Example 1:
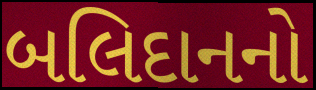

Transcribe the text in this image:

બલિદાનનો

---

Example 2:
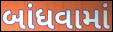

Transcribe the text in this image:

બાંધવામાં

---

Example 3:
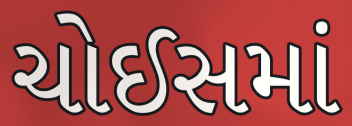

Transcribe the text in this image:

ચોઈસમાં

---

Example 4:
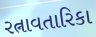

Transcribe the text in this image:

રત્નાવતારિકા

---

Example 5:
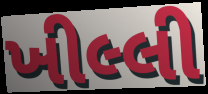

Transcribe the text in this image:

ખીલ્લી